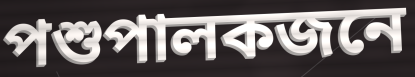
পশুপালকজনে